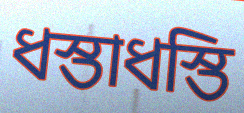
ধস্তাধস্তি